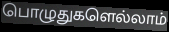
பொழுதுகளெல்லாம்